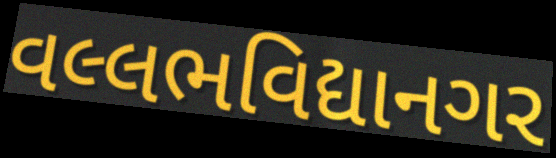
વલ્લભવિદ્યાનગર